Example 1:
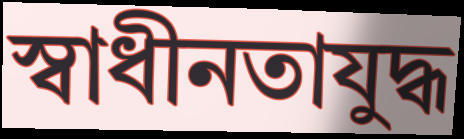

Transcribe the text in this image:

স্বাধীনতাযুদ্ধ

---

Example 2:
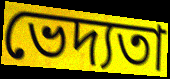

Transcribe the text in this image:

ভেদ্যতা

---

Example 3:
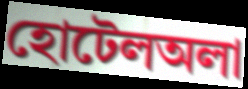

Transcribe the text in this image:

হোটেলঅলা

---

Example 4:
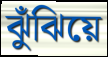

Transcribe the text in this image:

ঝুঁঝিয়ে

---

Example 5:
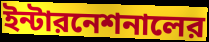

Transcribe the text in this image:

ইন্টারনেশনালের